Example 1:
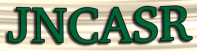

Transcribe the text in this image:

JNCASR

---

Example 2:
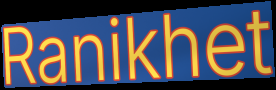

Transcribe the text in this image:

Ranikhet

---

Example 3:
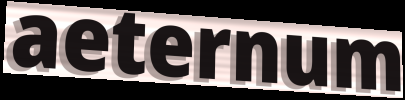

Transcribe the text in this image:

aeternum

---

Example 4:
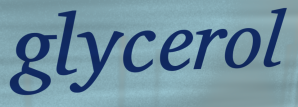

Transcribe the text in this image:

glycerol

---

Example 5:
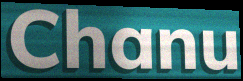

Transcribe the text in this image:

Chanu